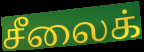
சீலைக்